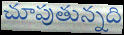
చూపుతున్నది